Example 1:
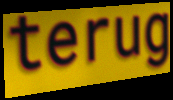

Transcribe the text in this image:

terug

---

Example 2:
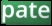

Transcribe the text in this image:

pate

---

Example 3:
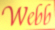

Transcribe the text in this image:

Webb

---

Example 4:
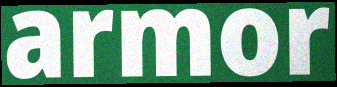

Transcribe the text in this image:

armor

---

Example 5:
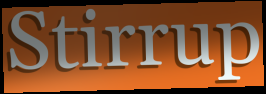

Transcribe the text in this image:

Stirrup